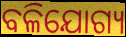
ବଳିଯୋଗ୍ୟ